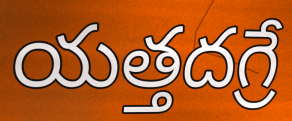
యత్తదగ్రే